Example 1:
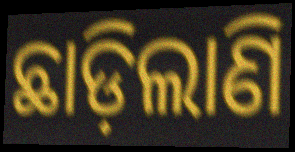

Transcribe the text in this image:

ଛାଡ଼ିଲାଣି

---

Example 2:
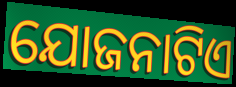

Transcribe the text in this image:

ଯୋଜନାଟିଏ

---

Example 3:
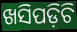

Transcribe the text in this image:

ଖସିପଡ଼ିଚି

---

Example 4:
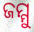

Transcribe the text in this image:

ଜମ୍ମୁ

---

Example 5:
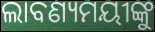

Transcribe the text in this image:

ଲାବଣ୍ୟମୟୀଙ୍କୁ